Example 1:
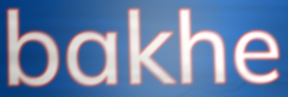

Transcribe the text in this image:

bakhe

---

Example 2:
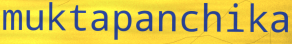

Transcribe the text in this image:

muktapanchika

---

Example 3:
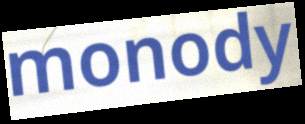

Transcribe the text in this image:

monody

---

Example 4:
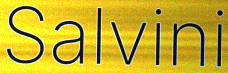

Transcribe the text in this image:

Salvini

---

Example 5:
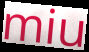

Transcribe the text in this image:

miu